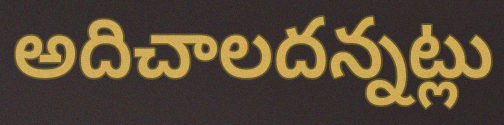
అదిచాలదన్నట్లు